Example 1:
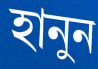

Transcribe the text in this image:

হানুন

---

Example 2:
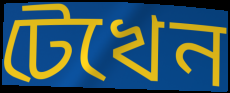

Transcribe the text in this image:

টেখেন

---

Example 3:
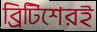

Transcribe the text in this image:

ব্রিটিশেরই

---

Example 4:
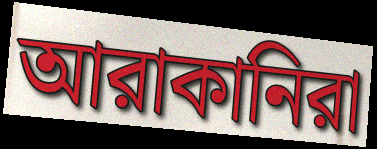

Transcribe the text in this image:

আরাকানিরা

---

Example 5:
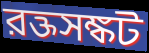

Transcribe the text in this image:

রক্তসঙ্কট